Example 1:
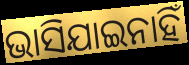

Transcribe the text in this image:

ଭାସିଯାଇନାହିଁ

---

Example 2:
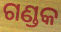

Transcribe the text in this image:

ଗଣ୍ଡକ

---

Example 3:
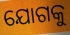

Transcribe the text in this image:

ଯୋଗକୁ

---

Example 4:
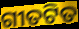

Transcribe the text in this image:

ଗୀତଟିତ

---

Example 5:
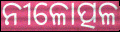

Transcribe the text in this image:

ନୀଳୋତ୍ପଳ